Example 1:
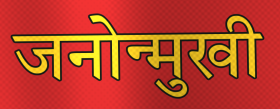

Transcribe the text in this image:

जनोन्मुखी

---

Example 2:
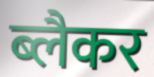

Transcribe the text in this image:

ब्लैकर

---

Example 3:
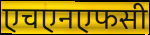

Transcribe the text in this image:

एचएनएफसी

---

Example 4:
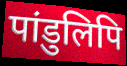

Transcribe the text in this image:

पांडुलिपि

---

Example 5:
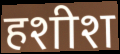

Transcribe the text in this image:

हशीश